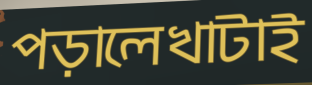
পড়ালেখাটাই